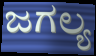
ಜಗಲ್ಯ